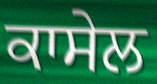
ਕਾਸੇਲ